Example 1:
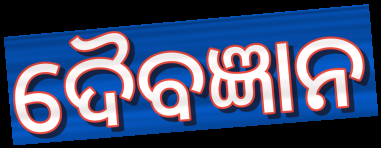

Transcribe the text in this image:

ଦୈବଜ୍ଞାନ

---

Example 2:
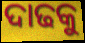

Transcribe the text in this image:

ଦାଢକୁ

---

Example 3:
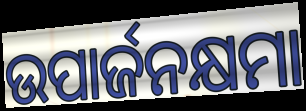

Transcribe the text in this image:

ଉପାର୍ଜନକ୍ଷମା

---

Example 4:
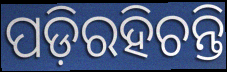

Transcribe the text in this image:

ପଡ଼ିରହିଚନ୍ତି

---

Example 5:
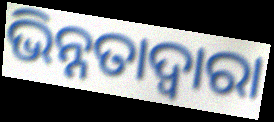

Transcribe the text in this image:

ଭିନ୍ନତାଦ୍ୱାରା